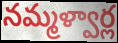
నమ్మళ్వార్ల